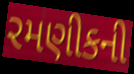
રમણીકની